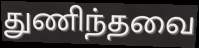
துணிந்தவை